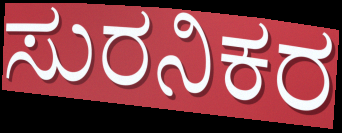
ಸುರನಿಕರ